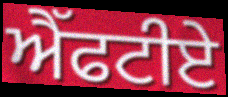
ਐੱਫਟੀਏ